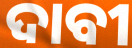
ଦାବୀ